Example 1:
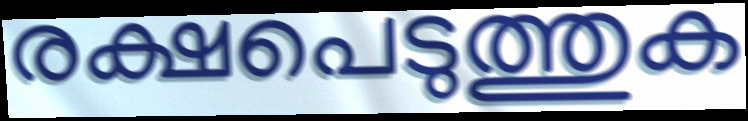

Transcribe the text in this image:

രക്ഷപെടുത്തുക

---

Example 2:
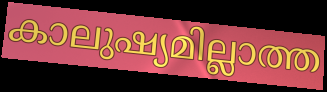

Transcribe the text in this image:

കാലുഷ്യമില്ലാത്ത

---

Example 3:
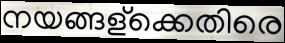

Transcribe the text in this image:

നയങ്ങള്ക്കെതിരെ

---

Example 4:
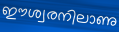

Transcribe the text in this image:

ഈശ്വരനിലാണു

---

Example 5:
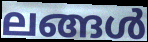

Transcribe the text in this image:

ലങ്ങൾ